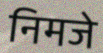
निमजे